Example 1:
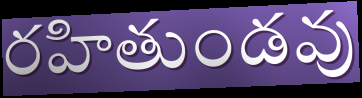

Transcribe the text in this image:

రహితుండవు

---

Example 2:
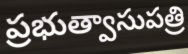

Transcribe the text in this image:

ప్రభుత్వాసుపత్రి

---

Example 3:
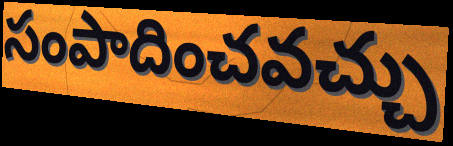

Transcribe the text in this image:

సంపాదించవచ్చు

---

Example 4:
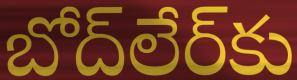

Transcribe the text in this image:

బోద్‌లేర్‌కు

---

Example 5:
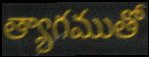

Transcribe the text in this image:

త్యాగముతో